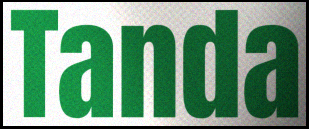
Tanda